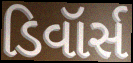
ડિવૉર્સ